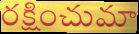
రక్షించుమా